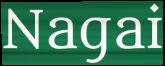
Nagai